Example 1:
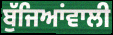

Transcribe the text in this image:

ਬੁੱਜਿਆਂਵਾਲੀ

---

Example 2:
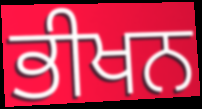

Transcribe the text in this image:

ਭੀਖਨ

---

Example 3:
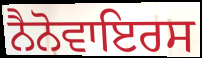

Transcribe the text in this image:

ਨੈਨੋਵਾਇਰਸ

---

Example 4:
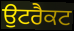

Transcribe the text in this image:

ਉਟਰੈਕਟ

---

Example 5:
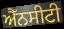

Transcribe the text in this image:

ਐੱਨਸੀਟੀ